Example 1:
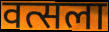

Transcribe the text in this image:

वत्सला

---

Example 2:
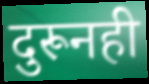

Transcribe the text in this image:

दुरूनही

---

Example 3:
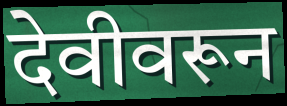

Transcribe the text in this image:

देवीवरून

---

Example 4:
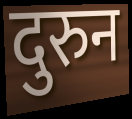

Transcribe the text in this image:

दुरुन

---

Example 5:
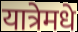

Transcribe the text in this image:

यात्रेमधे